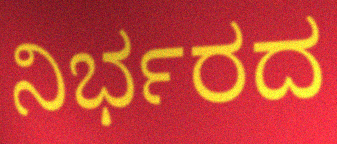
ನಿರ್ಭರದ